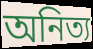
অনিত্য